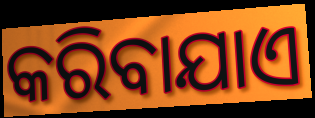
କରିବାଯାଏ